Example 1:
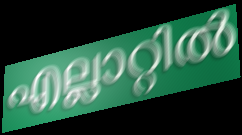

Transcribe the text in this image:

എല്ലാറ്റിൽ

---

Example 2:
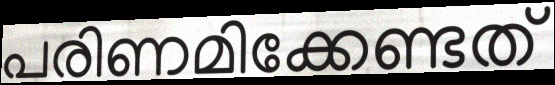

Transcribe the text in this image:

പരിണമിക്കേണ്ടത്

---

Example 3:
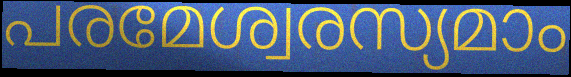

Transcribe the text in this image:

പരമേശ്വരസ്യമാം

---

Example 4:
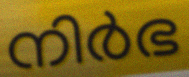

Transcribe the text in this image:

നിർഭ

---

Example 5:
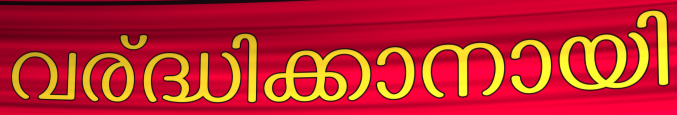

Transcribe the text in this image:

വര്ദ്ധിക്കാനായി